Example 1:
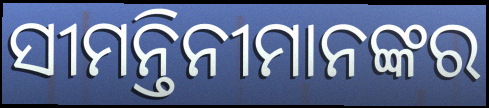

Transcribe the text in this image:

ସୀମନ୍ତିନୀମାନଙ୍କର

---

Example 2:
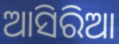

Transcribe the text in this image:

ଆସିରିଆ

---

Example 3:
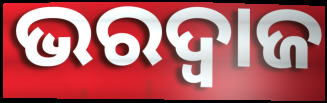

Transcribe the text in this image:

ଭରଦ୍ଵାଜ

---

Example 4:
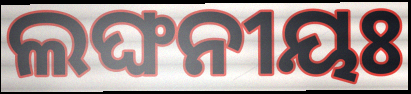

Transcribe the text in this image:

ଲଙ୍ଘନୀୟଃ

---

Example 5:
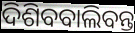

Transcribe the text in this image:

ଦିଶିବବାଲିବନ୍ତ